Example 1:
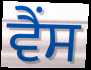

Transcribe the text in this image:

ਵੈਂਸ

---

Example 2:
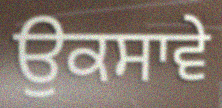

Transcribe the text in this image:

ਉਕਸਾਵੇ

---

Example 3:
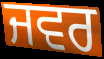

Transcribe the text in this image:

ਜਵਰ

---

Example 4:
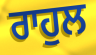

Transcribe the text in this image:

ਰਾਹੁਲ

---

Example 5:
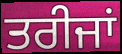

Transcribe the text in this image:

ਤਰੀਜਾਂ